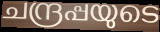
ചന്ദ്രപ്പയുടെ